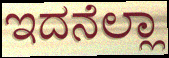
ಇದನೆಲ್ಲಾ